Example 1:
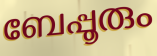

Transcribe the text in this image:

ബേപ്പൂരും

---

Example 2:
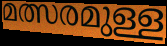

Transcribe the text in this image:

മത്സരമുള്ള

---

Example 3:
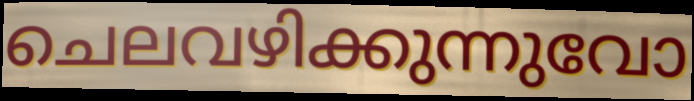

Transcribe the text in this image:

ചെലവഴിക്കുന്നുവോ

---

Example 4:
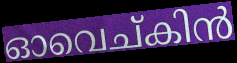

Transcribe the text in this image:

ഓവെച്കിൻ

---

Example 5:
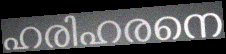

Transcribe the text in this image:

ഹരിഹരനെ